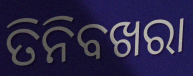
ତିନିବଖରା